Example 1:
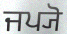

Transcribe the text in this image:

ਜਪ੍ਯੋ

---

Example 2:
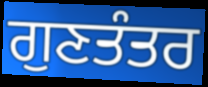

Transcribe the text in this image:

ਗੁਣਤੰਤਰ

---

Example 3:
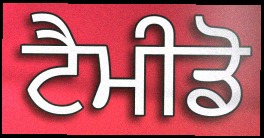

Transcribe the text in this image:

ਟੈਮੀਡੋ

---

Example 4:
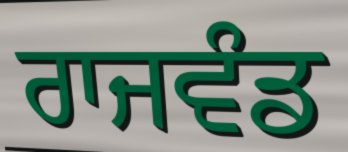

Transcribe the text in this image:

ਰਾਜਵੰਡ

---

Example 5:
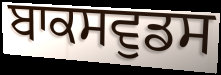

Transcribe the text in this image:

ਬਾਕਸਵੁਡਸ